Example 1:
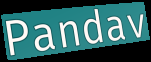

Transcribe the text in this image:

Pandav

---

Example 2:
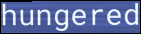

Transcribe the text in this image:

hungered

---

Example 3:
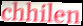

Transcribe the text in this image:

chhilen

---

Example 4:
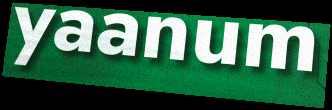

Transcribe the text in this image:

yaanum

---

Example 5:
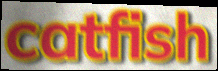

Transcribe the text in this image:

catfish